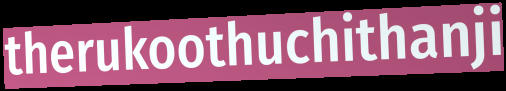
therukoothuchithanji